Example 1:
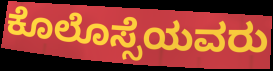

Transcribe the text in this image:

ಕೊಲೊಸ್ಸೆಯವರು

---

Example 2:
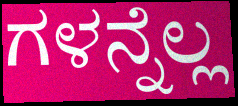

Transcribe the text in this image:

ಗಳನ್ನೆಲ್ಲ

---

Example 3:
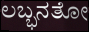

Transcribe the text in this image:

ಲಬ್ಭನತೋ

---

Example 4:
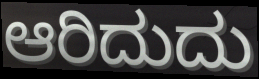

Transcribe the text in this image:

ಆರಿದುದು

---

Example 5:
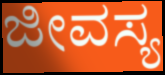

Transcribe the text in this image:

ಜೀವಸ್ಯ